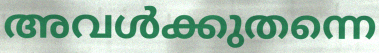
അവൾക്കുതന്നെ